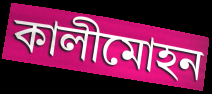
কালীমোহন